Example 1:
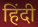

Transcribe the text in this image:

हिंदी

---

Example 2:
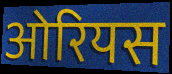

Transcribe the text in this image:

ओरियस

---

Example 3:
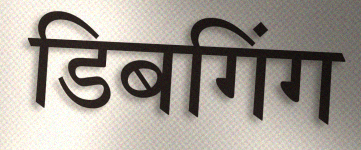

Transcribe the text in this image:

डिबगिंग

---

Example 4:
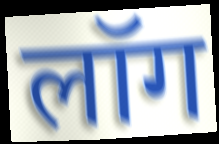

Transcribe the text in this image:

लॉग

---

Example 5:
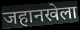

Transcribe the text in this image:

जहानखेला